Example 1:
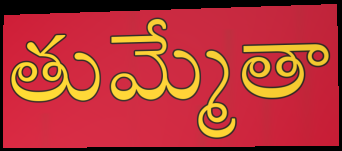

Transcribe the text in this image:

తుమ్మేతా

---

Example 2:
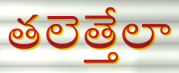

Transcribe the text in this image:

తలెత్తేలా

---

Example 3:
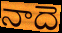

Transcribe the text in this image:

నాదె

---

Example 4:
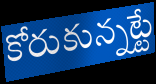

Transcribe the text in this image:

కోరుకున్నట్టే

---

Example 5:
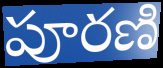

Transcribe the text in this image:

పూరణి